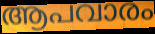
ആപവാരം